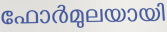
ഫോർമുലയായി